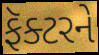
ફૅક્ટરને